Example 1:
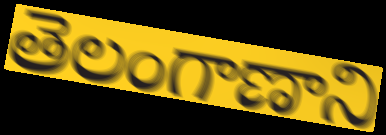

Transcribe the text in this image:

తెలంగాణాని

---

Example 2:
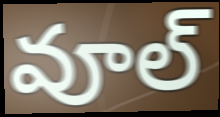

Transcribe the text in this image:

వూల్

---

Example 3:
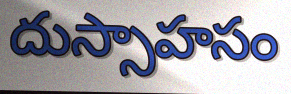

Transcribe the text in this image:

దుస్సాహసం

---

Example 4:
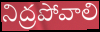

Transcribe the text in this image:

నిద్రపోవాలి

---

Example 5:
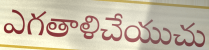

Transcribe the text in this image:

ఎగతాళిచేయుచు